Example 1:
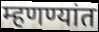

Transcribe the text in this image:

म्हणण्यांत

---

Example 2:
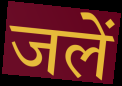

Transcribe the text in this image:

जलें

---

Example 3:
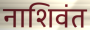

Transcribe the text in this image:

नाशिवंत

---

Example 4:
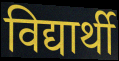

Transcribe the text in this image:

विद्यार्थी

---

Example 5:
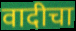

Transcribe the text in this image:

वादीचा